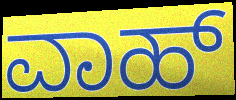
ವಾಹ್